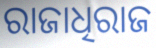
ରାଜାଧିରାଜ